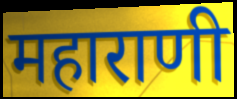
महाराणी